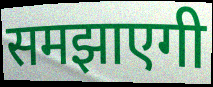
समझाएगी